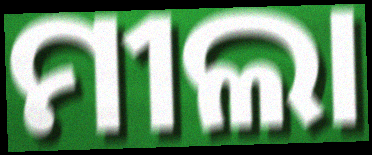
ମୀଲା